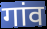
गांव